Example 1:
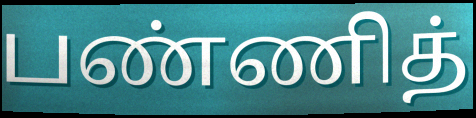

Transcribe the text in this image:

பண்ணித்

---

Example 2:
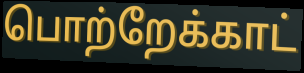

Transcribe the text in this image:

பொற்றேக்காட்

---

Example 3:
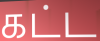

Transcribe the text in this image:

கட்ட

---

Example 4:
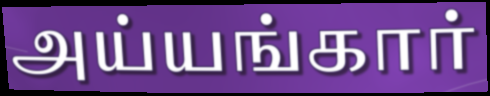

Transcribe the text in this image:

அய்யங்கார்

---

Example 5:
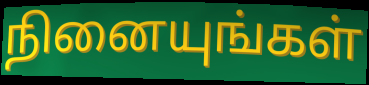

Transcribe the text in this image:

நினையுங்கள்